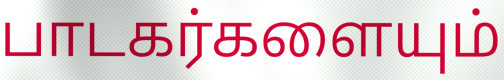
பாடகர்களையும்